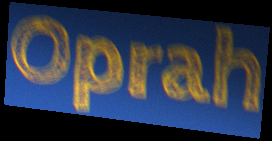
Oprah